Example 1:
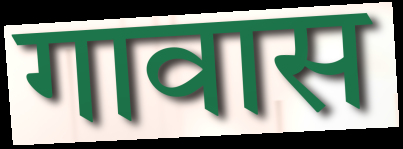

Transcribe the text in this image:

गावास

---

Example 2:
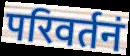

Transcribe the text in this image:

परिवर्तनं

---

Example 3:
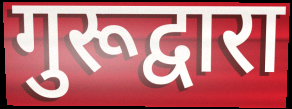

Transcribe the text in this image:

गुरूद्वारा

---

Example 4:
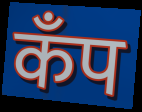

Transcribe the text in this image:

कॅंप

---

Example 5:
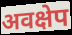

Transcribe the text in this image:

अवक्षेप